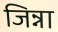
जिन्ना